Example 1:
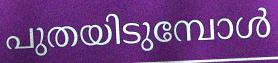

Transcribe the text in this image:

പുതയിടുമ്പോൾ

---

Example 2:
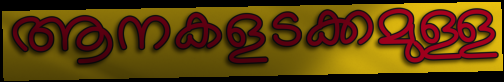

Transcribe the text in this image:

ആനകളടക്കമുള്ള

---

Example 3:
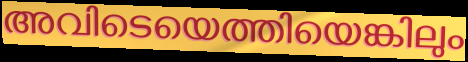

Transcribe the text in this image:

അവിടെയെത്തിയെങ്കിലും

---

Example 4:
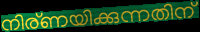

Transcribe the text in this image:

നിര്ണയിക്കുന്നതിന്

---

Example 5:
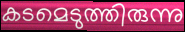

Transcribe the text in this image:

കടമെടുത്തിരുന്നു